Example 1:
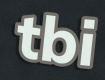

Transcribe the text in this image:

tbi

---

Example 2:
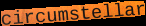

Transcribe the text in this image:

circumstellar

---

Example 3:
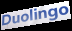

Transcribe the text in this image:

Duolingo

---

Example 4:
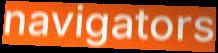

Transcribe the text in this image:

navigators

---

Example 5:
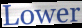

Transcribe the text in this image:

Lower